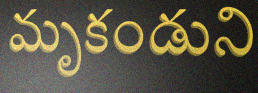
మృకండుని